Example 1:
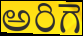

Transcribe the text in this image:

అరిగె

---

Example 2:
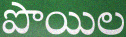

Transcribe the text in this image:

పొయిల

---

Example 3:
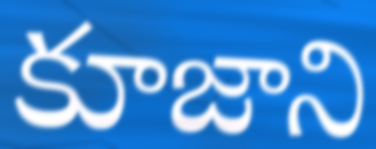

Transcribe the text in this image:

కూజాని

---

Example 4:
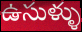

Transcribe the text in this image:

ఉసుళ్ళు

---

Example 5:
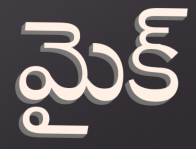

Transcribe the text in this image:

మైక్